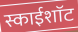
स्काईशॉट